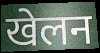
खेलन